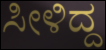
ಸೀಳಿದ್ದ